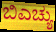
ಬಿಎಚ್ಯು